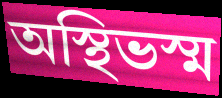
অস্থিভস্ম